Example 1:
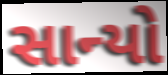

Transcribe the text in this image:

સાન્યો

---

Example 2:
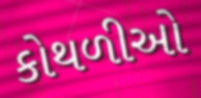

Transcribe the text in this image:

કોથળીઓ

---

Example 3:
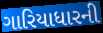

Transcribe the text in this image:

ગારિયાધારની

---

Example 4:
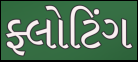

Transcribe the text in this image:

ફ્લોટિંગ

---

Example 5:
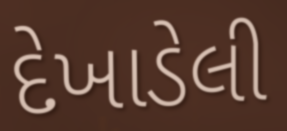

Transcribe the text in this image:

દેખાડેલી